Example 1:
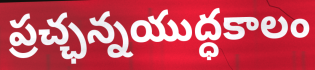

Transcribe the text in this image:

ప్రచ్ఛన్నయుద్ధకాలం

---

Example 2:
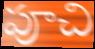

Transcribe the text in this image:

పూచి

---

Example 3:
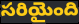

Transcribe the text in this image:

సరియైంది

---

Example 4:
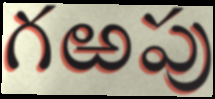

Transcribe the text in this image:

గఱపు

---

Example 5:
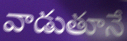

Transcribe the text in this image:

వాడుతూనే